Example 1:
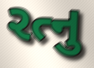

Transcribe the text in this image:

રત્નુ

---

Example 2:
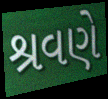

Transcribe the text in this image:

શ્રવણે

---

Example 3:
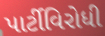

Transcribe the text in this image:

પાર્ટીવિરોધી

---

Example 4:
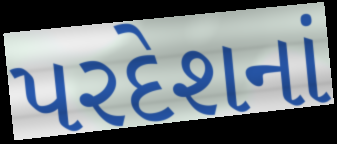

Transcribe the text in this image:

પરદેશનાં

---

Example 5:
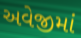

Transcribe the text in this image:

અવેજીમાં